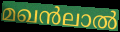
മഖൻലാൽ